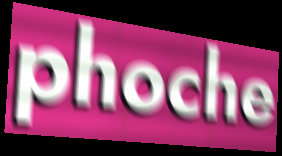
phoche